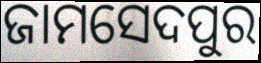
ଜାମସେଦପୁର